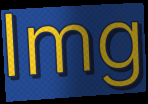
Img